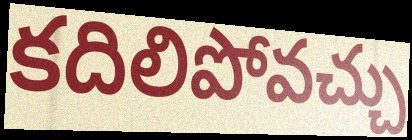
కదిలిపోవచ్చు